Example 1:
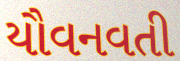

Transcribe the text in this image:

યૌવનવતી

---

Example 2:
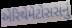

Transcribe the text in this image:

એરિથેમેટોસસનું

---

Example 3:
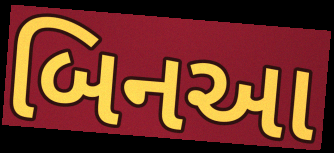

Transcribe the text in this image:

બિનઆ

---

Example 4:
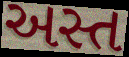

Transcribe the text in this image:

અસ્ત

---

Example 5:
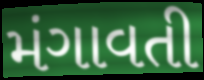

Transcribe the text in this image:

મંગાવતી